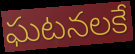
ఘటనలకే